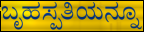
ಬೃಹಸ್ಪತಿಯನ್ನೂ